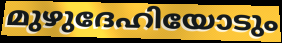
മുഴുദേഹിയോടും